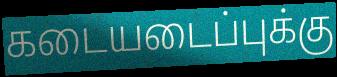
கடையடைப்புக்கு